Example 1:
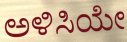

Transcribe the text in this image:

ಅಳಿಸಿಯೇ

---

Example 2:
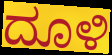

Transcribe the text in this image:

ದೂಳಿ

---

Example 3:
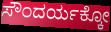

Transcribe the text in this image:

ಸೌಂದರ್ಯಕ್ಕೋ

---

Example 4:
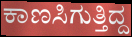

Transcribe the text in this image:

ಕಾಣಸಿಗುತ್ತಿದ್ದ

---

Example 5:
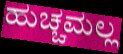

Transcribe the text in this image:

ಹುಚ್ಚಮಲ್ಲ